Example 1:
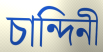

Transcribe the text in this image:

চান্দিনী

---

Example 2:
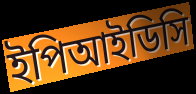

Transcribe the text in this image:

ইপিআইডিসি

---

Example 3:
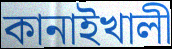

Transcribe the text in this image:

কানাইখালী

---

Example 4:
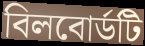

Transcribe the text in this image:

বিলবোর্ডটি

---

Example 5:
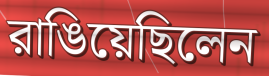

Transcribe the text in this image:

রাঙিয়েছিলেন